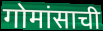
गोमांसाची